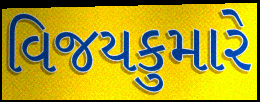
વિજયકુમારે